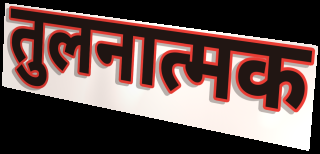
तुलनात्मक